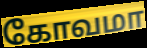
கோவமா